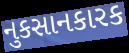
નુકસાનકારક